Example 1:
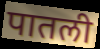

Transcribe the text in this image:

पातली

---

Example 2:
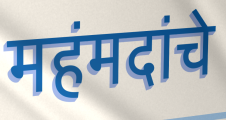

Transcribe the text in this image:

महंमदांचे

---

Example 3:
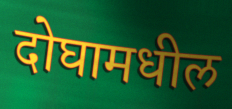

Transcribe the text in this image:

दोघामधील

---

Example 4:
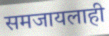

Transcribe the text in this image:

समजायलाही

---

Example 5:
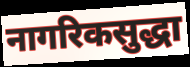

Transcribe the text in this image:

नागरिकसुद्धा